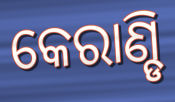
କେରାଣ୍ଡି